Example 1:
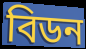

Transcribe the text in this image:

বিডন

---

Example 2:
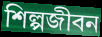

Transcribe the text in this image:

শিল্পজীবন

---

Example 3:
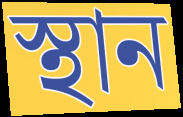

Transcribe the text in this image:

স্থান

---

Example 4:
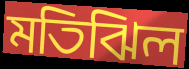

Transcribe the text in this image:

মতিঝিল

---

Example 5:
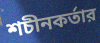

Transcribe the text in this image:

শচীনকর্তার